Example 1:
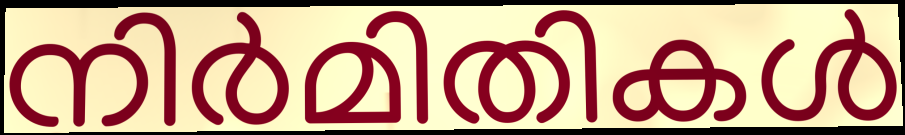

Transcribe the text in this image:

നിർമിതികൾ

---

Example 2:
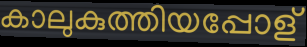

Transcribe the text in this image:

കാലുകുത്തിയപ്പോള്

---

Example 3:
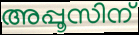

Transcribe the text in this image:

അപ്പൂസിന്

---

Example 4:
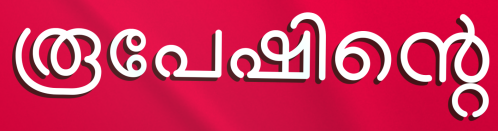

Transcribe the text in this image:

രൂപേഷിന്റെ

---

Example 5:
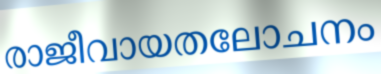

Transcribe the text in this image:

രാജീവായതലോചനം